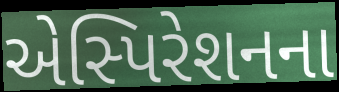
એસ્પિરેશનના